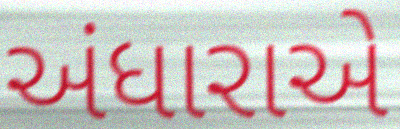
અંધારાએ